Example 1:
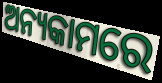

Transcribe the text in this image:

ଅନ୍ୟକାମରେ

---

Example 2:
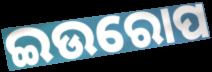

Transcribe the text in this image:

ଇଉରୋପ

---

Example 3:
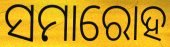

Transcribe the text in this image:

ସମାରୋହ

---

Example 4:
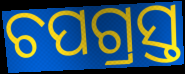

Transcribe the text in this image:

ଚପଗ୍ରସ୍ତ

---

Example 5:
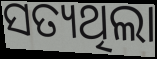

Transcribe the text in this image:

ସତ୍ୟଥିଲା